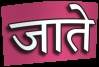
जाते